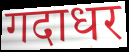
गदाधर